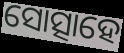
ସୋତ୍ସାହେ